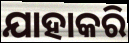
ଯାହାକରି